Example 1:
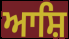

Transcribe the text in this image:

ਆਸ਼ਿ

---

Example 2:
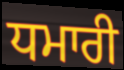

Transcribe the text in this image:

ਧਮਾਰੀ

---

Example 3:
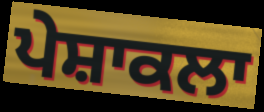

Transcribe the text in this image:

ਪੇਸ਼ਾਕਲਾ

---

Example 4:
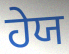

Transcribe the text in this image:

ਹੇਯ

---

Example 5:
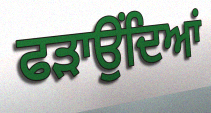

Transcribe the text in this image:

ਫੜਾਉਂਦਿਆਂ